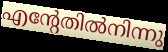
എന്റേതിൽനിന്നു